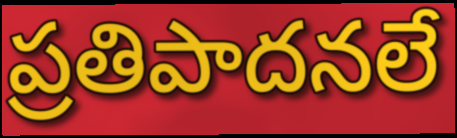
ప్రతిపాదనలే